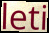
leti